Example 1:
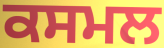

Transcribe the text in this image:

ਕਸਮਲ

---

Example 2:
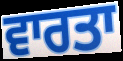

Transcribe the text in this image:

ਵਾਰਤਾ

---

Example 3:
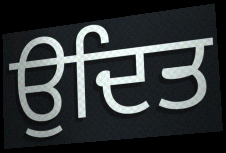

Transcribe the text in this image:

ਉਦਿਤ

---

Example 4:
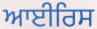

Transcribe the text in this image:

ਆਈਰਿਸ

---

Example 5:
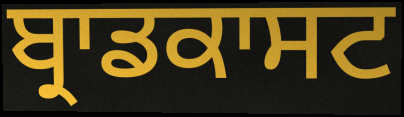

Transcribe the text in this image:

ਬ੍ਰਾਡਕਾਸਟ